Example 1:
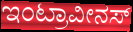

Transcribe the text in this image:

ಇಂಟ್ರಾವೀನಸ್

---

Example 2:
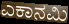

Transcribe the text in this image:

ಎಕಾನಮಿ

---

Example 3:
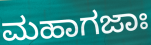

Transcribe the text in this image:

ಮಹಾಗಜಾಃ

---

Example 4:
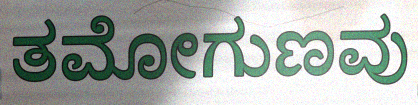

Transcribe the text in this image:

ತಮೋಗುಣವು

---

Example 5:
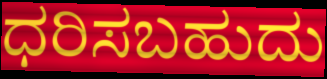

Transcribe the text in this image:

ಧರಿಸಬಹುದು